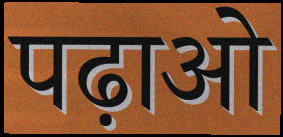
पढ़ाओ